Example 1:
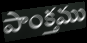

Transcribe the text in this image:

పాంక్తము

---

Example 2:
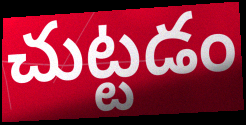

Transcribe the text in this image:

చుట్టడం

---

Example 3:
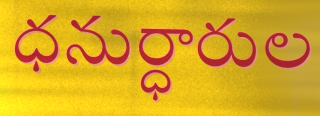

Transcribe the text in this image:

ధనుర్ధారుల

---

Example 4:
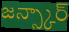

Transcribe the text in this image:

జన్స్కార్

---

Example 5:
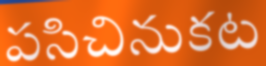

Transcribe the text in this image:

పసిచినుకట